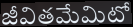
జీవితమేమిటో